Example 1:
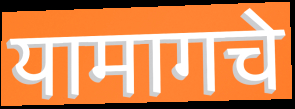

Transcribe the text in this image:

यामागचे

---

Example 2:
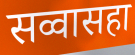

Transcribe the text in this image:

सव्वासहा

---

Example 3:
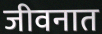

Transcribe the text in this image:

जीवनात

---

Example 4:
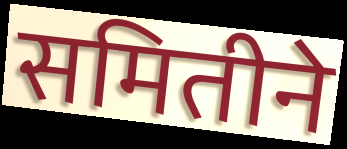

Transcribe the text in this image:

समितीने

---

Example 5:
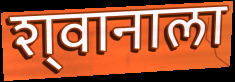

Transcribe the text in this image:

श्वानाला